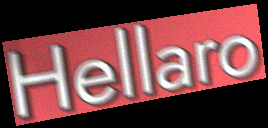
Hellaro